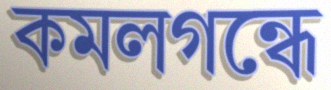
কমলগন্ধে